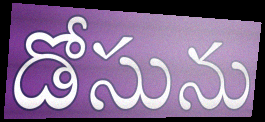
డోసును